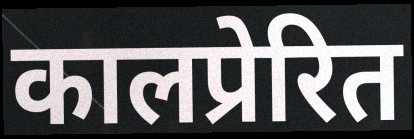
कालप्रेरित